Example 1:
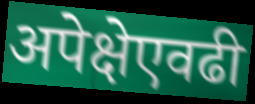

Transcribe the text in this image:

अपेक्षेएवढी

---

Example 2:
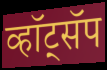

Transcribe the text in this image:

व्हॉट्सॅप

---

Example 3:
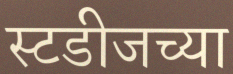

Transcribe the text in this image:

स्टडीजच्या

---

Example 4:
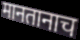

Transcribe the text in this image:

मानतानाच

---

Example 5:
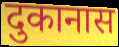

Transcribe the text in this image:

दुकानास